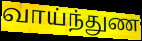
வாய்ந்துண